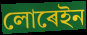
লোৰেইন